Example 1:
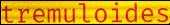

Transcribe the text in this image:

tremuloides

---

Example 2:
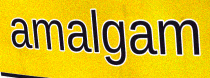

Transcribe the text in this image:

amalgam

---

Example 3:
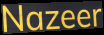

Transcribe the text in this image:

Nazeer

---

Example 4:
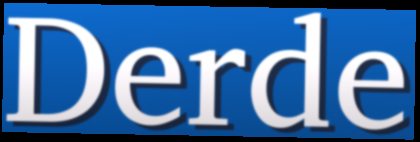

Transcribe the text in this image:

Derde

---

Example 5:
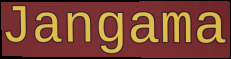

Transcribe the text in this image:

Jangama